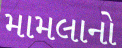
મામલાનો